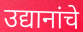
उद्यानांचे